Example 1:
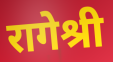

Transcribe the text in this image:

रागेश्री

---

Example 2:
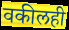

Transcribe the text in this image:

वकीलही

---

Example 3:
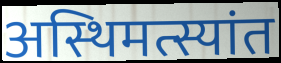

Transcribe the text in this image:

अस्थिमत्स्यांत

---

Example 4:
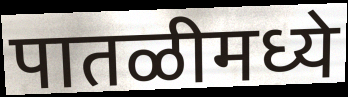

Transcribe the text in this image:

पातळीमध्ये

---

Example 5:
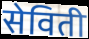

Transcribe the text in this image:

सेविती